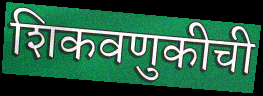
शिकवणुकीची